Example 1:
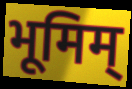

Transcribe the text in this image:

भूमिम्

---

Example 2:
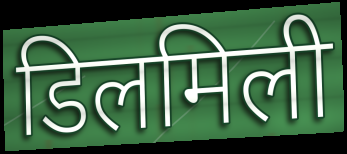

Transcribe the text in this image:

डिलमिली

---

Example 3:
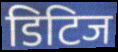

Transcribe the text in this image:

डिटिज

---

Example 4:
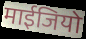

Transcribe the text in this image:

माईजियो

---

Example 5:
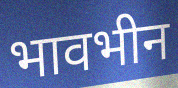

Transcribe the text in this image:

भावभीन